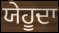
ਯੇਹੂਦਾ